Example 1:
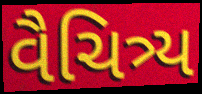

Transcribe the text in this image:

વૈચિત્ર્ય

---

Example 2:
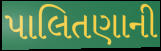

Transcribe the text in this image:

પાલિતણાની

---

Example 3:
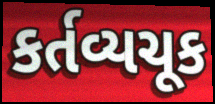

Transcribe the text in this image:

કર્તવ્યચૂક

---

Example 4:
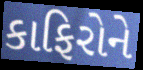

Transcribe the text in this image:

કાફિરોને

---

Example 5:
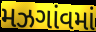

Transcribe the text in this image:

મઝગાંવમાં